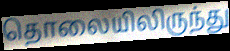
தொலையிலிருந்து